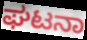
ಘಟನಾ